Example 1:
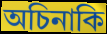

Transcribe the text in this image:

অচিনাকি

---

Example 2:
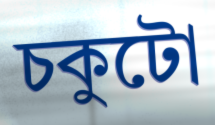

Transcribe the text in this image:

চকুটো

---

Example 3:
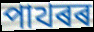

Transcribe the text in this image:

পাথৰৰ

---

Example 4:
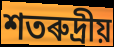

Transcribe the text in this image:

শতৰুদ্ৰীয়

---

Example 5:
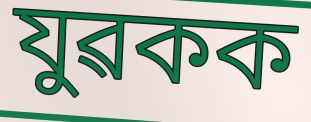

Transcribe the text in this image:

যুৱকক